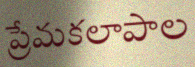
ప్రేమకలాపాల